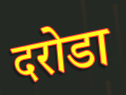
दरोडा